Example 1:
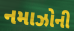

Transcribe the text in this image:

નમાઝોની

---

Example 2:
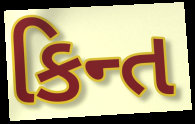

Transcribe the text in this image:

કિન્ત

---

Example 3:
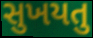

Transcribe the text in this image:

સુખયતુ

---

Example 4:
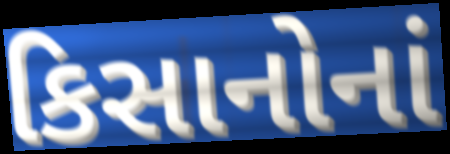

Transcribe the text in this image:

કિસાનોનાં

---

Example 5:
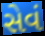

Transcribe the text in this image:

સેવં